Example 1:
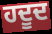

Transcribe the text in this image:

ਹਦੂਦ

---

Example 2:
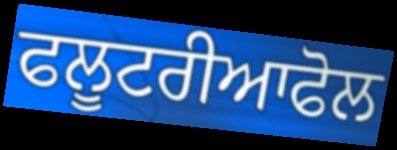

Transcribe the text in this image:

ਫਲੂਟਰੀਆਫੋਲ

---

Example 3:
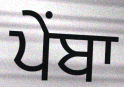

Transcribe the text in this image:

ਪੇਂਬਾ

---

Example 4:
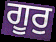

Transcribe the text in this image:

ਗੂਰੁ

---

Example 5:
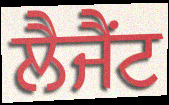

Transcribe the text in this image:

ਲੈਜੈਂਟ